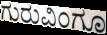
ಗುರುವಿಂಗೂ